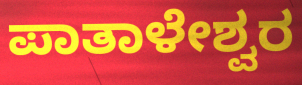
ಪಾತಾಳೇಶ್ವರ